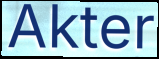
Akter